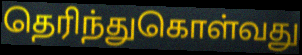
தெரிந்துகொள்வது